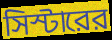
সিস্টারের